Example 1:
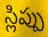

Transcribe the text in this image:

స్లిప్పు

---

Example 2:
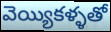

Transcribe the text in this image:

వెయ్యికళ్ళతో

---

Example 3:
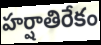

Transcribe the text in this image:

హర్షాతిరేకం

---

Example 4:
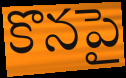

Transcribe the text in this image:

కొనపై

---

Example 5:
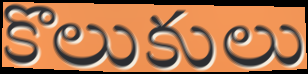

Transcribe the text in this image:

కొలుకులు